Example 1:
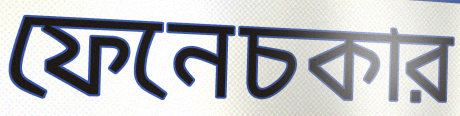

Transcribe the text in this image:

ফেনেচকার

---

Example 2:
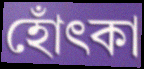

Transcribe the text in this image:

হোঁৎকা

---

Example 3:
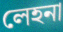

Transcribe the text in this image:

লেহনা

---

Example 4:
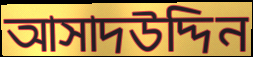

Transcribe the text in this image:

আসাদউদ্দিন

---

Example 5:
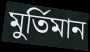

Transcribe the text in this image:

মুর্তিমান